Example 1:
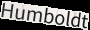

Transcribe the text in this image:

Humboldt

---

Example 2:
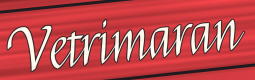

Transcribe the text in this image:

Vetrimaran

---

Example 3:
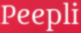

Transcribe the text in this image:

Peepli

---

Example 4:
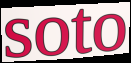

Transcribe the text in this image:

soto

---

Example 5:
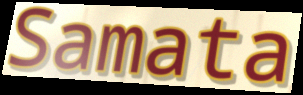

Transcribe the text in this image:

Samata